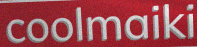
coolmaiki